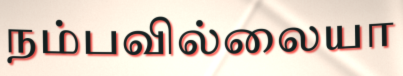
நம்பவில்லையா